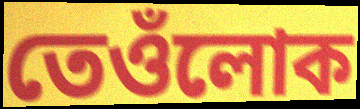
তেওঁলোক